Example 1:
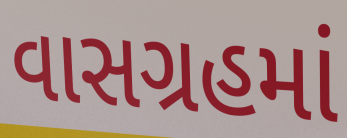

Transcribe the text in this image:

વાસગ્રહમાં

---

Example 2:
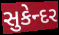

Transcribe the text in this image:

સુકેન્દર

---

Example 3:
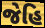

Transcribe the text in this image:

જેહિ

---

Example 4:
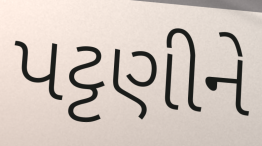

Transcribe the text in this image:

પટ્ટણીને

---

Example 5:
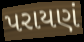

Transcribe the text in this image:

પરાયણં